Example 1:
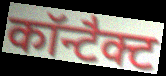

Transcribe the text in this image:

कॉन्टैक्ट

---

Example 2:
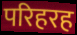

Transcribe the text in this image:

परिहरह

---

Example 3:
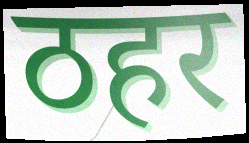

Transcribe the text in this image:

ठहर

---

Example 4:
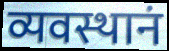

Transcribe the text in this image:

व्यवस्थानं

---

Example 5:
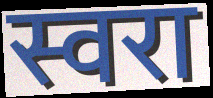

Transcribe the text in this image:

स्वरा